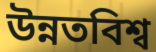
উন্নতবিশ্ব